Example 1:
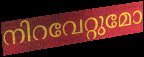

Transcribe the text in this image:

നിറവേറ്റുമോ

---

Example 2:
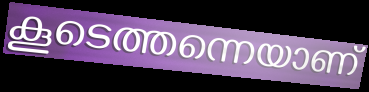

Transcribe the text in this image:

കൂടെത്തന്നെയാണ്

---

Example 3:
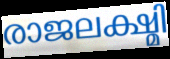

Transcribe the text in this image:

രാജലക്ഷ്മി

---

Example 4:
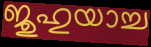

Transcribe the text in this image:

ജുഹുയാച്ച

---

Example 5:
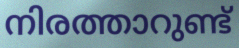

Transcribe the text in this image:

നിരത്താറുണ്ട്